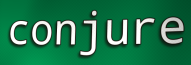
conjure